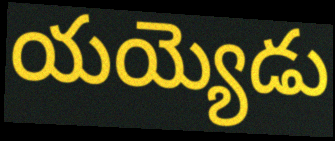
యయ్యెడు